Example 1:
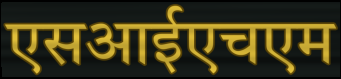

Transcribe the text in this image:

एसआईएचएम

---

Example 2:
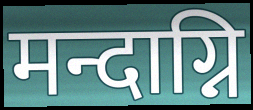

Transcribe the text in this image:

मन्दाग्नि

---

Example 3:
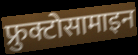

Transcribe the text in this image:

फ्रुक्टोसामाइन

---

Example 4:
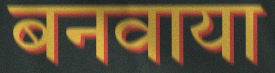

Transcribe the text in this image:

बनवाया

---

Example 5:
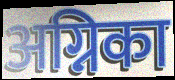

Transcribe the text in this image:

अग्निका